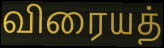
விரையத்